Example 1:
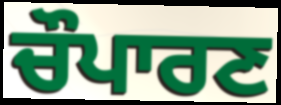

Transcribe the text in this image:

ਚੌਪਾਰਣ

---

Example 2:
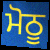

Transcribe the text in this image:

ਮੋਠੂ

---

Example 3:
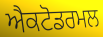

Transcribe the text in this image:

ਐਕਟੋਡਰਮਲ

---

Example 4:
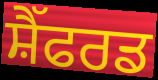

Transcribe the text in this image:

ਸ਼ੈੱਫਰਡ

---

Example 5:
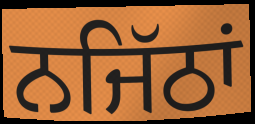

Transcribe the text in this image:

ਨਜਿੱਠਾਂ